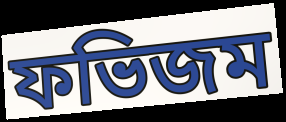
ফভিজম